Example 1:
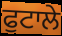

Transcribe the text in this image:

ਫੁਟਾਲੇ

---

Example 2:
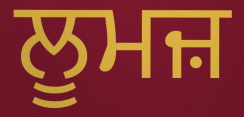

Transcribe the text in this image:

ਲੂਮਜ਼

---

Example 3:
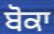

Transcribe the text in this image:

ਬੋਕਾ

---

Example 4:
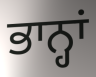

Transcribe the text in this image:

ਭਾਨ੍ਹਾਂ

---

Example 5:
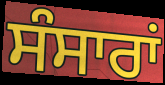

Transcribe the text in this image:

ਸੰਸਾਰਾਂ